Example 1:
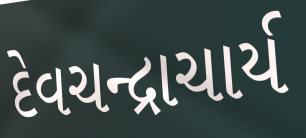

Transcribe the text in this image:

દેવચન્દ્રાચાર્ય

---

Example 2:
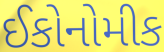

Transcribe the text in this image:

ઈકોનોમીક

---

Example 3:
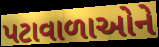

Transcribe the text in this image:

પટાવાળાઓને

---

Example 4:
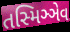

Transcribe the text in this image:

તસ્મિઞ્ઞેવ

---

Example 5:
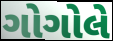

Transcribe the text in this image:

ગોગોલે